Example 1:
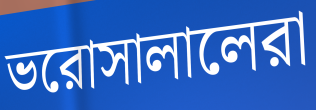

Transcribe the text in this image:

ভরোসালালেরা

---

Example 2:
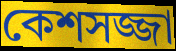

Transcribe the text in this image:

কেশসজ্জা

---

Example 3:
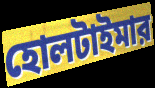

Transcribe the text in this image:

হোলটাইমার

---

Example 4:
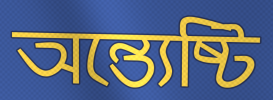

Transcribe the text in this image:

অন্ত্যেষ্টি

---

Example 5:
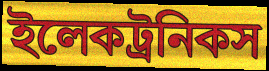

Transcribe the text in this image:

ইলেকট্রনিকস